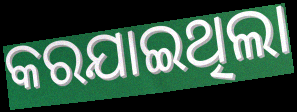
କରଯାଇଥିଲା